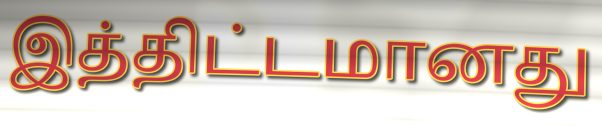
இத்திட்டமானது